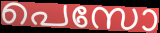
പെസോ